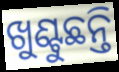
ଖୁଣ୍ଟୁଛନ୍ତି